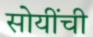
सोयींची